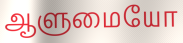
ஆளுமையோ